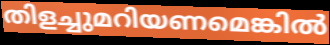
തിളച്ചുമറിയണമെങ്കിൽ